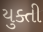
યુક્તી